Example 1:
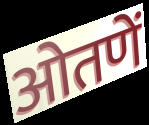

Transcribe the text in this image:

ओतणें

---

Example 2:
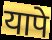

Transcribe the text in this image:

यापे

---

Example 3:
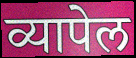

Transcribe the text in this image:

व्यापेल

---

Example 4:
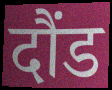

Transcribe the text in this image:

दौंड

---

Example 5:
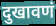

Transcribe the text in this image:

दुखावणं